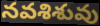
నవశిశువు